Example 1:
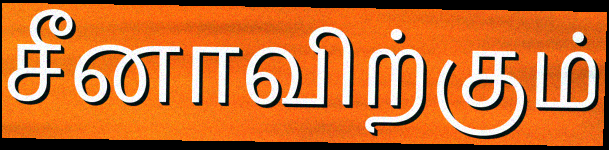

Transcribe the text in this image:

சீனாவிற்கும்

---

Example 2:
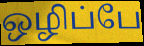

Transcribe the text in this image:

ஒழிப்பே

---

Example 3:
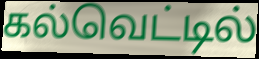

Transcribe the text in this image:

கல்வெட்டில்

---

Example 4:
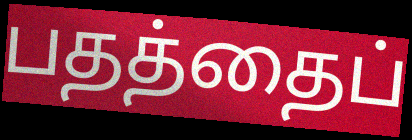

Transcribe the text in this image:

பதத்தைப்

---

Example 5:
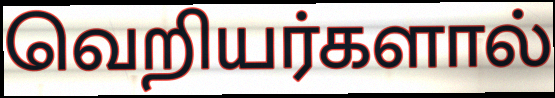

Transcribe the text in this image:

வெறியர்களால்